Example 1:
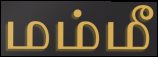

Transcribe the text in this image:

மம்மீ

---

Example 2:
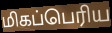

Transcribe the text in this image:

மிகப்பெரிய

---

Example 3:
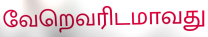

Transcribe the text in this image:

வேறெவரிடமாவது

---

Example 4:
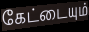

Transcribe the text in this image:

கேட்டையும்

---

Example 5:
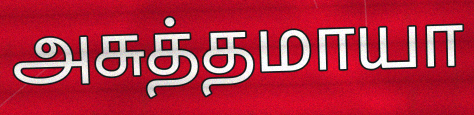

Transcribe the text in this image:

அசுத்தமாயா